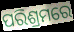
ପରିଶ୍ରମରେ